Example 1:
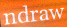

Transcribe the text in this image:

ndraw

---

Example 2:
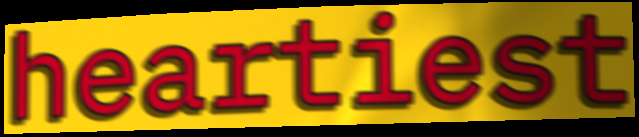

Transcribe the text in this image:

heartiest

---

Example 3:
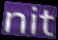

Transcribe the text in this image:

nit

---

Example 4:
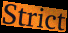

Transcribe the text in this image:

Strict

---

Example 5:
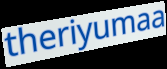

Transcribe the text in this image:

theriyumaa